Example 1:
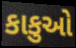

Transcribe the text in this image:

કાકુઓ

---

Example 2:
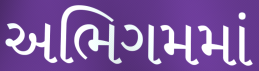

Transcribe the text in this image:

અભિગમમાં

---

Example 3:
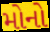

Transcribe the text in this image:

મોનો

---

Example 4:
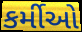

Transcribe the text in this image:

કર્મીઓ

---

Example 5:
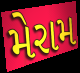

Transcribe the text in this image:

મેરામ